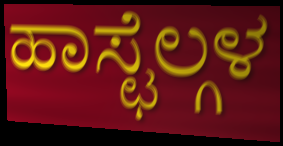
ಹಾಸ್ಟೆಲ್ಗಳ